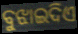
ବୁଝାଇଦିଏ